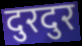
दुरदुर